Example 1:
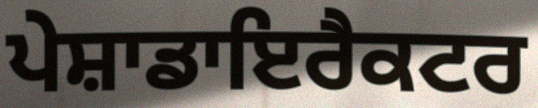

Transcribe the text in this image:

ਪੇਸ਼ਾਡਾਇਰੈਕਟਰ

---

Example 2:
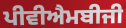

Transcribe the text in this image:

ਪੀਵੀਐਮਬੀਜੀ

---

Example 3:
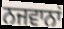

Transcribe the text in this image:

ਨਜਵਾਨਾਂ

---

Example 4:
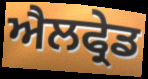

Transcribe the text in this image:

ਐਲਫ੍ਰੇਡ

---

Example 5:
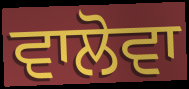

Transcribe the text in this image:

ਵਾਲੋਵਾ